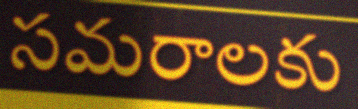
సమరాలకు